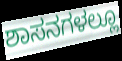
ಶಾಸನಗಳಲ್ಲೂ